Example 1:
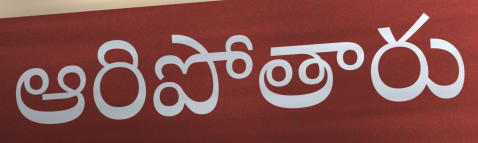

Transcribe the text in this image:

ఆరిపోతారు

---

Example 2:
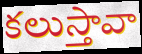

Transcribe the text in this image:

కలుస్తావా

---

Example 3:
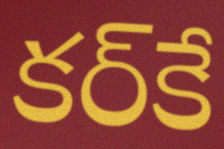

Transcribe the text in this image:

కర్‌కే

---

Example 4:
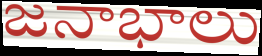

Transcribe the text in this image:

జనాభాలు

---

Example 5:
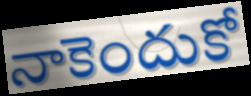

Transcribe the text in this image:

నాకెందుకో